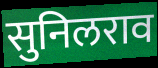
सुनिलराव